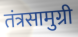
तंत्रसामुग्री